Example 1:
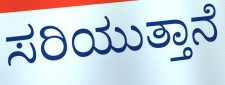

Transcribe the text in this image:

ಸರಿಯುತ್ತಾನೆ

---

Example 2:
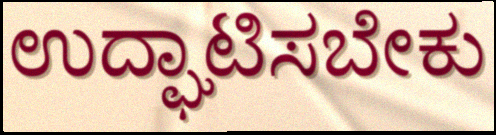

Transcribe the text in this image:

ಉದ್ಘಾಟಿಸಬೇಕು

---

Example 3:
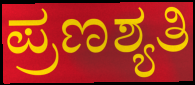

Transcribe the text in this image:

ಪ್ರಣಶ್ಯತಿ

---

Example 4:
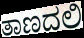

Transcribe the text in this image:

ತಾಣದಲಿ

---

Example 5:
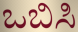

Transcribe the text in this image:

ಒಬಿಸಿ